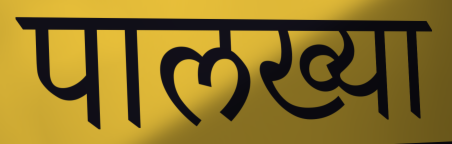
पालख्या